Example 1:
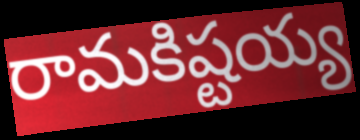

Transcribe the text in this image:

రామకిష్టయ్య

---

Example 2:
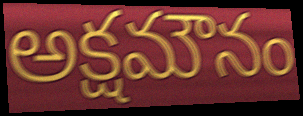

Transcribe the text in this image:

అక్షమౌనం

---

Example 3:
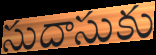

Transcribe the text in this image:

సుదాసుకు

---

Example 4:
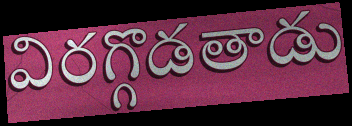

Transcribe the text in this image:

విరగ్గొడతాడు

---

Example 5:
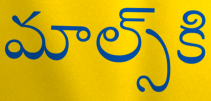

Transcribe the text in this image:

మాల్స్‌కి